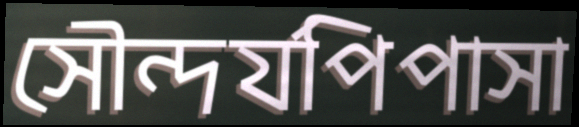
সৌন্দৰ্যপিপাসা